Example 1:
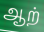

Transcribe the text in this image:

ஆற்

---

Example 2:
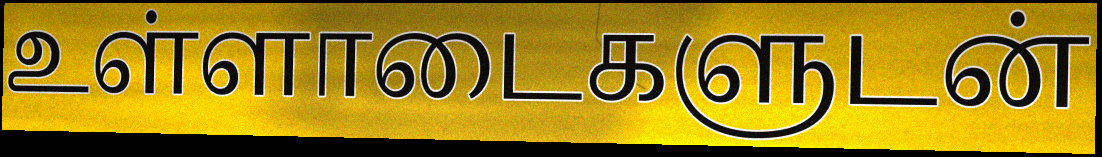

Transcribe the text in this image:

உள்ளாடைகளுடன்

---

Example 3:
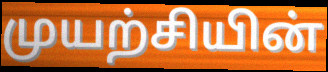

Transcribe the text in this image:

முயற்சியின்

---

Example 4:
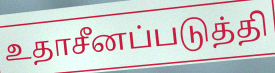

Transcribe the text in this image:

உதாசீனப்படுத்தி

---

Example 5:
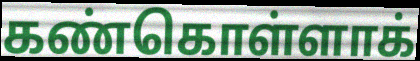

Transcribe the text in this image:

கண்கொள்ளாக்